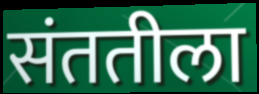
संततीला